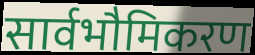
सार्वभौमिकरण